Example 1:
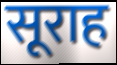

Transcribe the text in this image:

सूराह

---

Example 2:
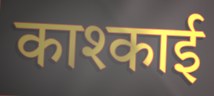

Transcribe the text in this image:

काश्काई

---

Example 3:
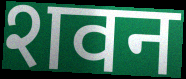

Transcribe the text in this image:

शवन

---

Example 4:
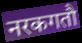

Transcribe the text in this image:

नरकगतौ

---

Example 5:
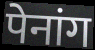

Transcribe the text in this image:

पेनांग